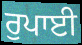
ਰੁਪਾਈ